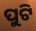
ପୁଟି